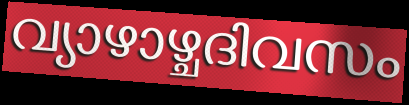
വ്യാഴാഴ്ചദിവസം